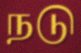
நடு